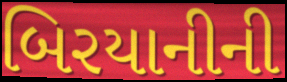
બિરયાનીની